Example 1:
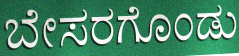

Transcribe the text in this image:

ಬೇಸರಗೊಂಡು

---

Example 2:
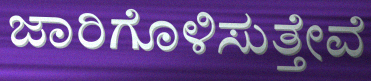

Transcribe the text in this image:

ಜಾರಿಗೊಳಿಸುತ್ತೇವೆ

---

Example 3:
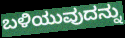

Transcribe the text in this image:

ಬಳಿಯುವುದನ್ನು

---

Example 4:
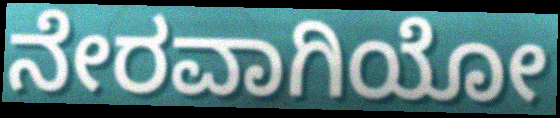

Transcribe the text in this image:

ನೇರವಾಗಿಯೋ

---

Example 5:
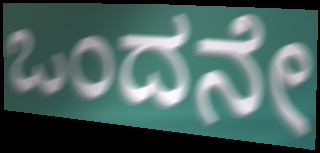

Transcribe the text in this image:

ಒಂದನೇ